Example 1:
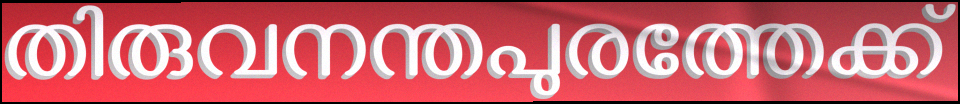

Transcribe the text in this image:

തിരുവനന്തപുരത്തേക്ക്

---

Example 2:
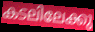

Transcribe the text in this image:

കടലിലേക്കു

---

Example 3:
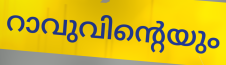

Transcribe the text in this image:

റാവുവിന്റെയും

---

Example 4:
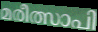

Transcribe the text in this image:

മരീത്സാപി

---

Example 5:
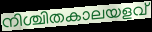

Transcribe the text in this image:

നിശ്ചിതകാലയളവ്